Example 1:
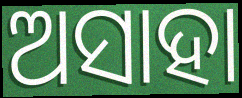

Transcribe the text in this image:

ଅସାହା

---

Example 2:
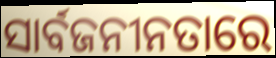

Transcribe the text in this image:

ସାର୍ବଜନୀନତାରେ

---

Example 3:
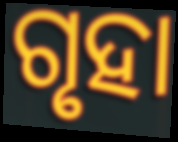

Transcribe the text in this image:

ଗୃହା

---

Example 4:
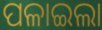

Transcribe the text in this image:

ପଳାଇଲା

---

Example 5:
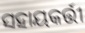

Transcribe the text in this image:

ସହାୟକର୍ତ୍ତୀ